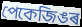
পেকেজিঙৰ